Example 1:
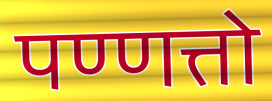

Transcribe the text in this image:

पण्णत्तो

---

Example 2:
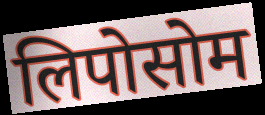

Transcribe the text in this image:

लिपोसोम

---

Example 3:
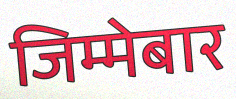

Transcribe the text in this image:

जिम्मेबार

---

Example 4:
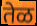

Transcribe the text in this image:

तेळ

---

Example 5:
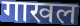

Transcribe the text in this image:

गाखल